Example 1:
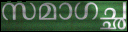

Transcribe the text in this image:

സമാഗച്ഛ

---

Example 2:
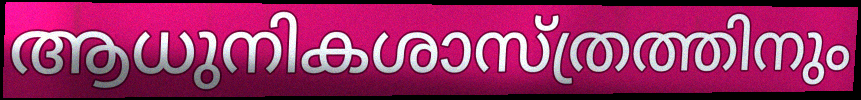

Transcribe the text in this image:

ആധുനികശാസ്ത്രത്തിനും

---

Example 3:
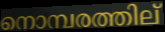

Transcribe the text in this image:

നൊമ്പരത്തില്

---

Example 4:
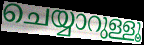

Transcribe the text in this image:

ചെയ്യാറുള്ളൂ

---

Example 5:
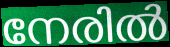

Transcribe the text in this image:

നേരിൽ